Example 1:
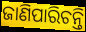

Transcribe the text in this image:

ଜାଣିପାରିଚନ୍ତି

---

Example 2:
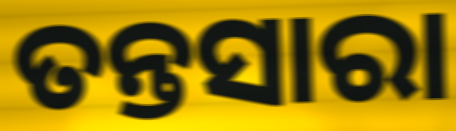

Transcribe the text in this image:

ତନ୍ତସାରା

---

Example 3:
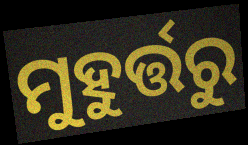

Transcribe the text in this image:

ମୁହୁର୍ତ୍ତରୁ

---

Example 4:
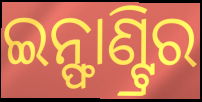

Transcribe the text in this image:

ଇନ୍ଫାଣ୍ଟ୍ରିର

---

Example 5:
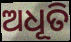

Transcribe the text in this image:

ଅଧୂତି